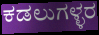
ಕಡಲುಗಳ್ಳರ